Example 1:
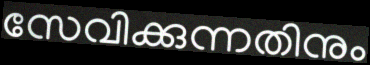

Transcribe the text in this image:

സേവിക്കുന്നതിനും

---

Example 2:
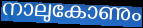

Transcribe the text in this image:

നാലുകോണും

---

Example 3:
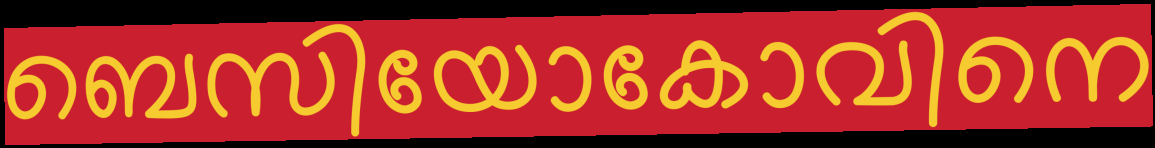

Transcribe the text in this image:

ബെസിയോകോവിനെ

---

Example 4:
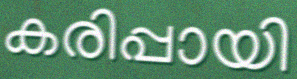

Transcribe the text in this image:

കരിപ്പായി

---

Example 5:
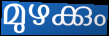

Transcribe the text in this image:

മുഴക്കും